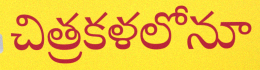
చిత్రకళలోనూ